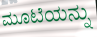
ಮೂಟೆಯನ್ನು